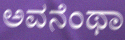
ಅವನೆಂಥಾ